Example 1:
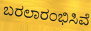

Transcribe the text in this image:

ಬರಲಾರಂಭಿಸಿವೆ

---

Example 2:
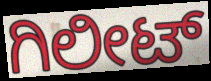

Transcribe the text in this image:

ಗಿಲೀಟ್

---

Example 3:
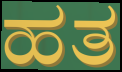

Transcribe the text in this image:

ಹತ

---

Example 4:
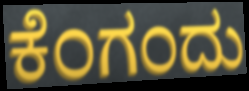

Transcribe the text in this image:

ಕೆಂಗಂದು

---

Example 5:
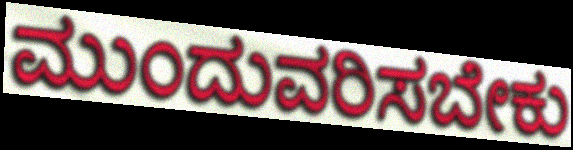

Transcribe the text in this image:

ಮುಂದುವರಿಸಬೇಕು